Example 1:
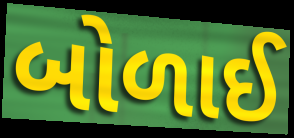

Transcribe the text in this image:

બોળાઈ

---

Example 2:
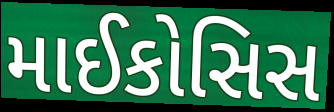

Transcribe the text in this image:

માઈકોસિસ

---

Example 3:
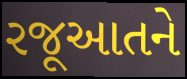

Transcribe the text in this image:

રજૂઆતને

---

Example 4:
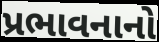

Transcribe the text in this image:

પ્રભાવનાનો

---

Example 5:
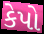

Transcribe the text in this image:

કેપો